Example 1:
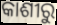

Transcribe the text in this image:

କାଶୀରୁ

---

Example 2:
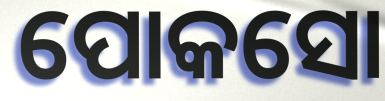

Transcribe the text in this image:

ପୋକସୋ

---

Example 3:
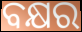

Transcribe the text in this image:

ବକ୍ଷର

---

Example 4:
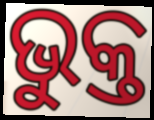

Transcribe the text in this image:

ଭୁକ୍ତ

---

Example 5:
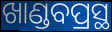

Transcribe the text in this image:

ଖାଣ୍ଡବପ୍ରସ୍ଥ